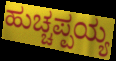
ಹುಚ್ಚಪ್ಪಯ್ಯ